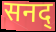
सनद्